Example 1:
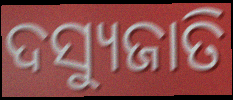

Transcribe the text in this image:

ଦସ୍ୟୁଜାତି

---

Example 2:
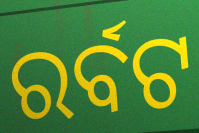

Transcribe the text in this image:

ରର୍ବଟ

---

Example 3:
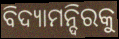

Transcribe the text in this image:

ବିଦ୍ୟାମନ୍ଦିରକୁ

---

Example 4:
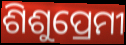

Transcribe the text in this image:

ଶିଶୁପ୍ରେମୀ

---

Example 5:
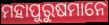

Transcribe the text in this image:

ମହାପୁରୁଷମାନେ